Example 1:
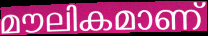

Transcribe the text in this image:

മൗലികമാണ്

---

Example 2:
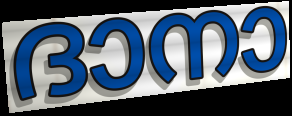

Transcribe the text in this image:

ദാനാ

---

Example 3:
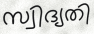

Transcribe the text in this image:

സ്വിദ്യതി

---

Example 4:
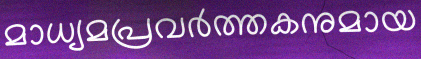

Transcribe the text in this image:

മാധ്യമപ്രവർത്തകനുമായ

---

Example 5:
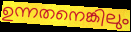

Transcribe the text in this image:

ഉന്നതനെങ്കിലും